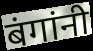
बंगांनी